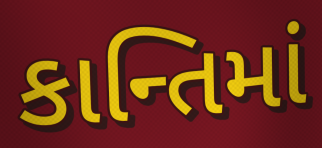
કાન્તિમાં